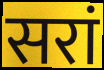
सरां